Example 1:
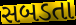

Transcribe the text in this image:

સબડતા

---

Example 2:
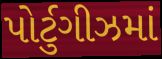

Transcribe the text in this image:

પોર્ટુગીઝમાં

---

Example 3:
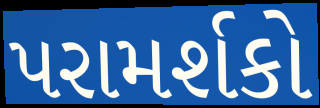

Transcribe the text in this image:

પરામર્શકો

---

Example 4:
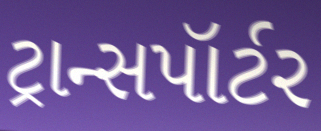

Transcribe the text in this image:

ટ્રાન્સપૉર્ટર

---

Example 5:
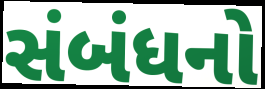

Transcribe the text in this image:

સંબંધનો